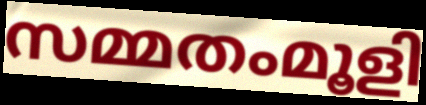
സമ്മതംമൂളി